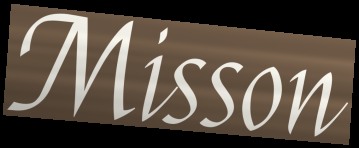
Misson